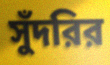
সুঁদরির